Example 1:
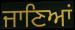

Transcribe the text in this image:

ਜਾਣਿਆਂ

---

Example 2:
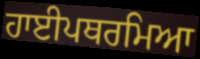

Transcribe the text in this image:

ਹਾਈਪਥਰਮਿਆ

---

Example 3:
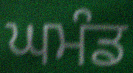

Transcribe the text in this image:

ਘਮੰਡ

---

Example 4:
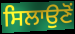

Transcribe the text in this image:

ਸਿਲਾਉਣੋਂ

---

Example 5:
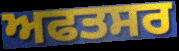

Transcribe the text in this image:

ਅਫਤਸਰ